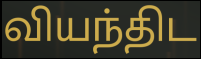
வியந்திட